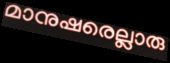
മാനുഷരെല്ലാരു